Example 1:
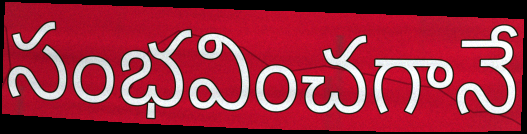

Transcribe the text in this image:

సంభవించగానే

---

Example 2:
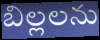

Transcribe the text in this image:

బిల్లలను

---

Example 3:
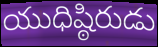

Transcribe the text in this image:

యుధిష్ఠిరుడు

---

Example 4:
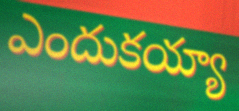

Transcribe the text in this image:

ఎందుకయ్యా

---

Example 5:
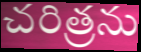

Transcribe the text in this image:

చరిత్రను